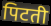
पिटती